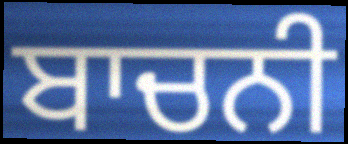
ਬਾਚਨੀ